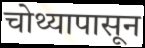
चोथ्यापासून